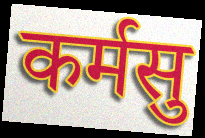
कर्मसु